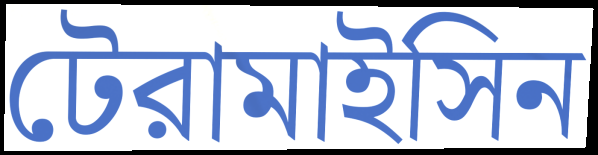
টেরামাইসিন